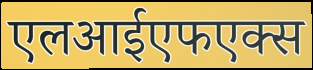
एलआईएफएक्स